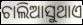
ଚାଲିଆସୁଥାଏ